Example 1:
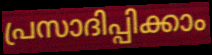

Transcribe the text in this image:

പ്രസാദിപ്പിക്കാം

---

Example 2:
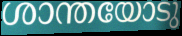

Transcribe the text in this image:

ശാന്തയോടു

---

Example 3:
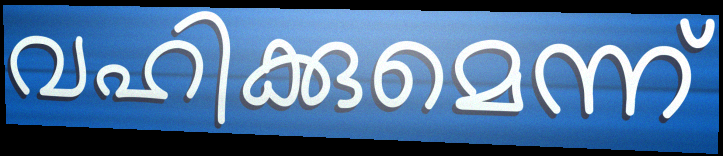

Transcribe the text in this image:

വഹിക്കുമെന്ന്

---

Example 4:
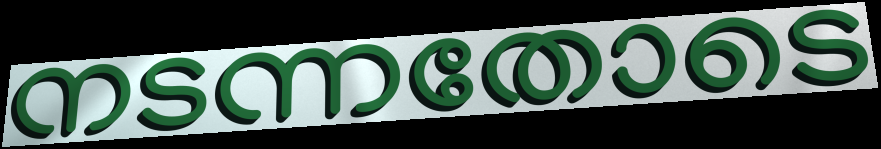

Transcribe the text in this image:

നടന്നതോടെ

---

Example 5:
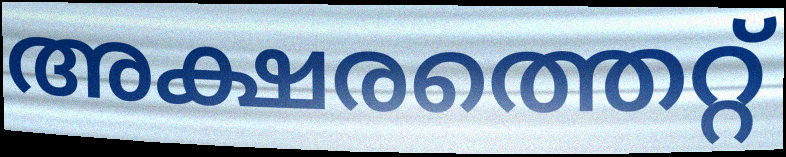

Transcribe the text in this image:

അക്ഷരത്തെറ്റ്